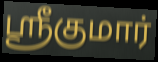
ஸ்ரீகுமார்